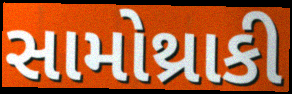
સામોથ્રાકી